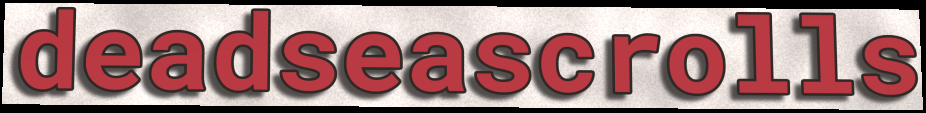
deadseascrolls